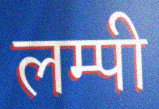
लम्पी